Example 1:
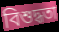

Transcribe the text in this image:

বিশুদ্ধতা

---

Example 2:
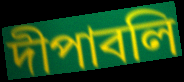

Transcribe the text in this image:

দীপাবলি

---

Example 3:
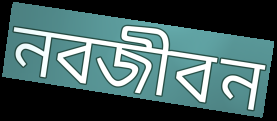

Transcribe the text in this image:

নবজীবন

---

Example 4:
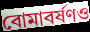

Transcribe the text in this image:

বোমাবর্ষণও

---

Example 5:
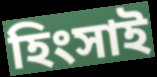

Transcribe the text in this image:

হিংসাই